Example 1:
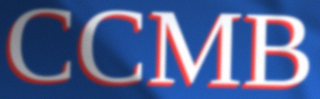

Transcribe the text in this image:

CCMB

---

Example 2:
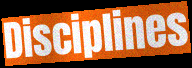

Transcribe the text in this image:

Disciplines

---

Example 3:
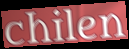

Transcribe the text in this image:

chilen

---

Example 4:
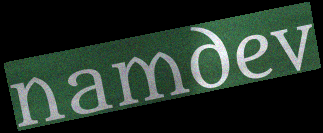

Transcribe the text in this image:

namdev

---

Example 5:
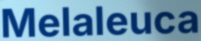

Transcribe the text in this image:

Melaleuca